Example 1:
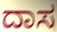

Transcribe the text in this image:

ದಾಸ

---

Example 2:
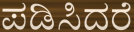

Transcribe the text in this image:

ಪಡಿಸಿದರೆ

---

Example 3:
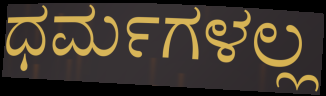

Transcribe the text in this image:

ಧರ್ಮಗಳಲ್ಲ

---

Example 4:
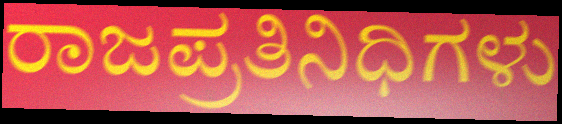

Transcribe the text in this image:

ರಾಜಪ್ರತಿನಿಧಿಗಳು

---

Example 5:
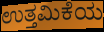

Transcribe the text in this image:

ಉತ್ತಮಿಕೆಯ